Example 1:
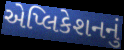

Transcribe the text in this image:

એપ્લિકેશનનું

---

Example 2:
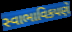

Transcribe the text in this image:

સ્વાભાવિકપણે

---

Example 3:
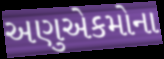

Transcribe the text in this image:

અણુએકમોના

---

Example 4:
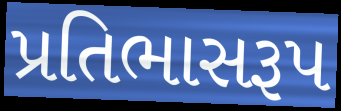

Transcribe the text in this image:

પ્રતિભાસરૂપ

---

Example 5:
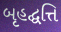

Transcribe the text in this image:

બૃહદ્ઘત્તિ